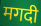
मगदी